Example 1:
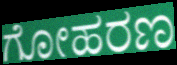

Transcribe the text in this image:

ಗೋಹರಣ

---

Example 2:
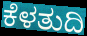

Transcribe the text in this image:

ಕೆಳತುದಿ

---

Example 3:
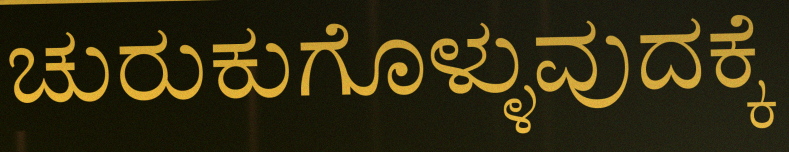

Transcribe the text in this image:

ಚುರುಕುಗೊಳ್ಳುವುದಕ್ಕೆ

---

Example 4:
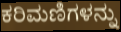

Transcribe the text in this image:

ಕರಿಮಣಿಗಳನ್ನು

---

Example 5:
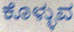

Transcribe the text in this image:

ಕೊಳ್ಳುವ